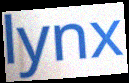
lynx